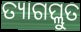
ତ୍ୟାଗପ୍ଲୁତ